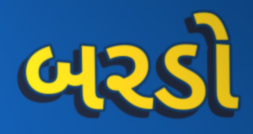
બરડો